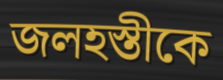
জলহস্তীকে